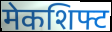
मेकशिफ्ट